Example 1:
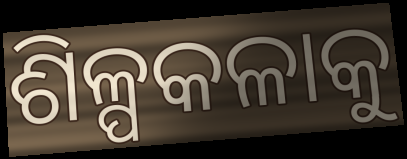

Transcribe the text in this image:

ଶିଳ୍ପକଳାକୁ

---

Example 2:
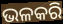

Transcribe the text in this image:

ଭଳକରି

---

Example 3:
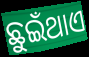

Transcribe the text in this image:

ଛୁଇଁଥାଏ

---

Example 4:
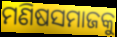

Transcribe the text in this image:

ମଣିଷସମାଜକୁ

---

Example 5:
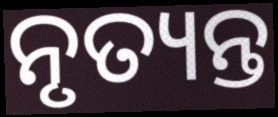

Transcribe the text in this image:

ନୃତ୍ୟନ୍ତ